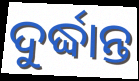
ଦୁର୍ଦ୍ଧାନ୍ତ